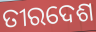
ତୀରଦେଶ